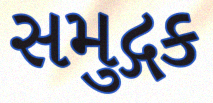
સમુદ્ગક